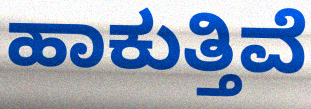
ಹಾಕುತ್ತಿವೆ